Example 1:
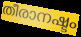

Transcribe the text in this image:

തീരാനഷ്ടം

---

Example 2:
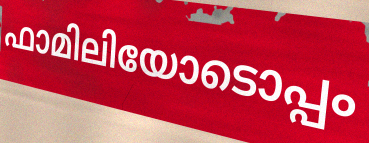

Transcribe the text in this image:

ഫാമിലിയോടൊപ്പം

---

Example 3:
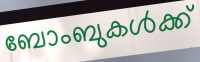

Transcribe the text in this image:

ബോംബുകൾക്ക്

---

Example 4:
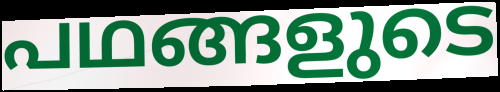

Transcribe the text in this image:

പഥങ്ങളുടെ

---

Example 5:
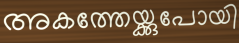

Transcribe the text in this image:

അകത്തേയ്ക്കുപോയി